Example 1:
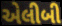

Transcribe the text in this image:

એલીબી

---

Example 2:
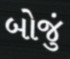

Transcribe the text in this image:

બોજું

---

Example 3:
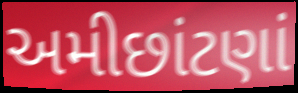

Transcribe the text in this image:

અમીછાંટણાં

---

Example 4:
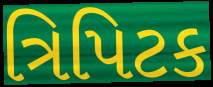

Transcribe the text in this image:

ત્રિપિટક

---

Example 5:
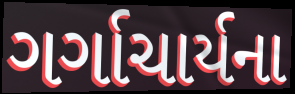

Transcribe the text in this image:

ગર્ગાચાર્યના